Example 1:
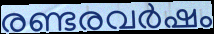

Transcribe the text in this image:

രണ്ടരവർഷം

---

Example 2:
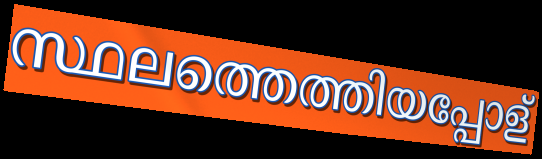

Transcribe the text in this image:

സ്ഥലത്തെത്തിയപ്പോള്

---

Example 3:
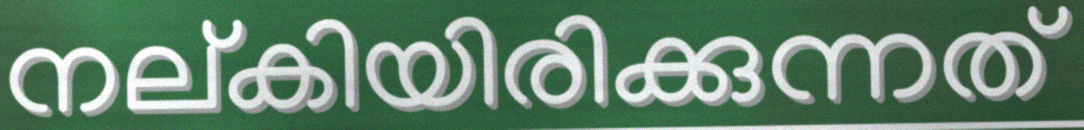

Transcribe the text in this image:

നല്കിയിരിക്കുന്നത്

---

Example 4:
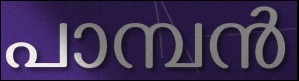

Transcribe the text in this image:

പാമ്പൻ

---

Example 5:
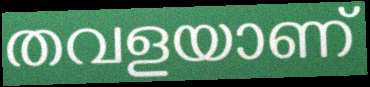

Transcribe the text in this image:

തവളയാണ്